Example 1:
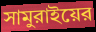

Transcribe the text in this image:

সামুরাইয়ের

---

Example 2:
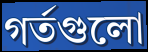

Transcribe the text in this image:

গর্তগুলো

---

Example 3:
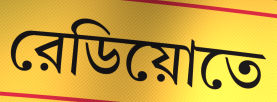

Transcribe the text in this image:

রেডিয়োতে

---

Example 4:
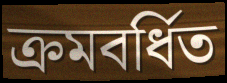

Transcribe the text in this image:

ক্রমবর্ধিত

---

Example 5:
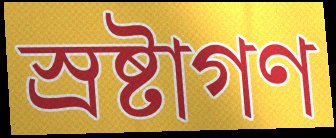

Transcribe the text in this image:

স্রষ্টাগণ